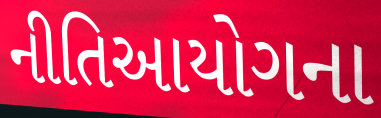
નીતિઆયોગના